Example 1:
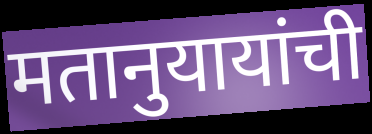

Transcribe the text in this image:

मतानुयायांची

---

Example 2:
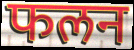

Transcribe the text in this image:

फलन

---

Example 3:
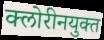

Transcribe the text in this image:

क्लोरीनयुक्त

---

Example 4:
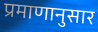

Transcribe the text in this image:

प्रमाणानुसार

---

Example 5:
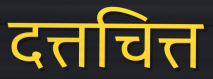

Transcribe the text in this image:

दत्तचित्त